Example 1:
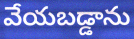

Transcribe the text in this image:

వేయబడ్డాను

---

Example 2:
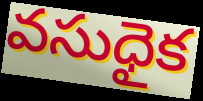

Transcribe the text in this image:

వసుధైక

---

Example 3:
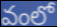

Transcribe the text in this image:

వంలో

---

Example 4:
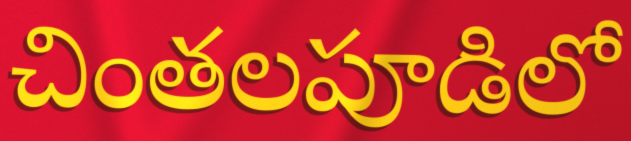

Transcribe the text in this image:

చింతలపూడిలో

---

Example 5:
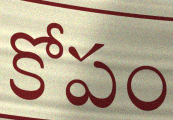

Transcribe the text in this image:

కోపం